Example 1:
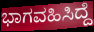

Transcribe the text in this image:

ಭಾಗವಹಿಸಿದ್ದೆ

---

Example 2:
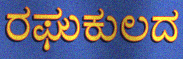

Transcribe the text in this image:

ರಘುಕುಲದ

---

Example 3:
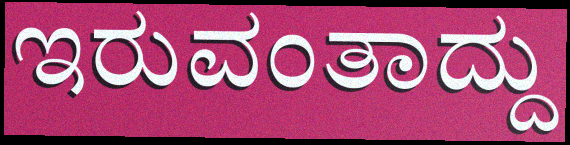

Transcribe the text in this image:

ಇರುವಂತಾದ್ದು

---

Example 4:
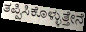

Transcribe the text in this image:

ತಪ್ಪಿಸಿಕೊಳ್ಳುತ್ತೇನೆ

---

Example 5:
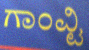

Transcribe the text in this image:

ಗಾಂವ್ಟಿ